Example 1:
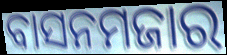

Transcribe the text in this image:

ବାସନମଜାର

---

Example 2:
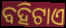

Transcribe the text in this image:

ବହିଟାଏ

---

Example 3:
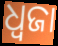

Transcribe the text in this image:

ଧ୍ୱଜା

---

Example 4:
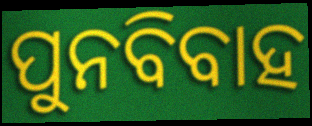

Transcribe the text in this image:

ପୁନବିବାହ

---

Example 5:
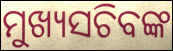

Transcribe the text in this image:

ମୁଖ୍ୟସଚିବଙ୍କ